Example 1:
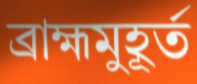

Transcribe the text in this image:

ব্রাহ্মমুহূর্ত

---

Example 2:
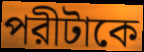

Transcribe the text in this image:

পরীটাকে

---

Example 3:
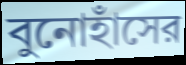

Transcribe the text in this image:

বুনোহাঁসের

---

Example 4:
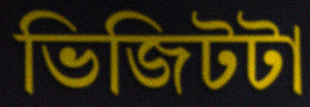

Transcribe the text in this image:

ভিজিটটা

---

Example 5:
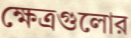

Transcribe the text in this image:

ক্ষেত্রগুলোর